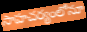
సాహచర్యంలోనూ